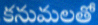
కనుమలతో